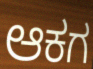
ಆಕಗ